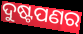
ଦୁଷ୍ଟପଣର